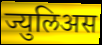
ज्युलिअस